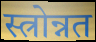
स्त्रोन्नत